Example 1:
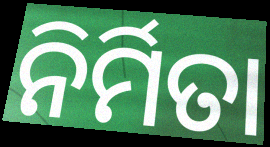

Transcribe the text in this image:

ନିର୍ମିତା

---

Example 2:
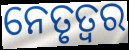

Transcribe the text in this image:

ନେତୃତ୍ୱର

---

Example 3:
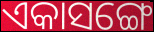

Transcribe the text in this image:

ଏକାସଙ୍ଗେ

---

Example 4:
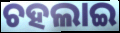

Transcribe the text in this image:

ଚହଲାଇ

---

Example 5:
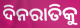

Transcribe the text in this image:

ଦିନରାତିକୁ